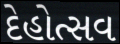
દેહોત્સવ